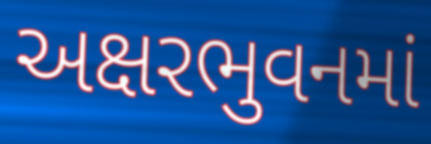
અક્ષરભુવનમાં